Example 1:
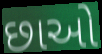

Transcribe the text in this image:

છાઓ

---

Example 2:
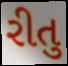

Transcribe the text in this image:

રીતુ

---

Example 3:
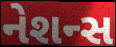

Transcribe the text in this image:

નેશન્સ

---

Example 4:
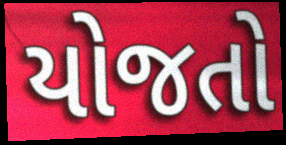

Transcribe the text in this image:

યોજતો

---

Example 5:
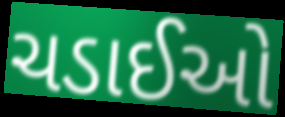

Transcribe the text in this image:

ચડાઈઓ